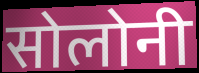
सोलोनी